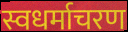
स्वधर्माचरण